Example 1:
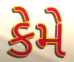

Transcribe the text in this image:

કેમે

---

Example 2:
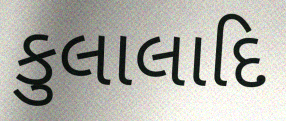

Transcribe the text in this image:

કુલાલાદિ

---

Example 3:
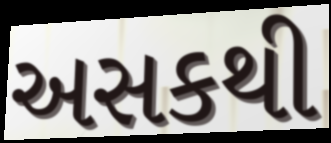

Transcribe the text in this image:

અસકથી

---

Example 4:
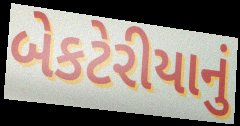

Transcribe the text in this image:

બેકટેરીયાનું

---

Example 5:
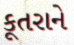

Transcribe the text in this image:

કૂતરાને